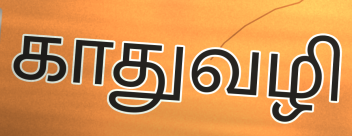
காதுவழி